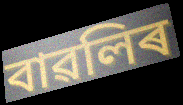
বাৱলিৰ